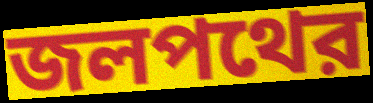
জলপথের